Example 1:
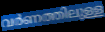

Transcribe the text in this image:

വർണത്തിലുള്ള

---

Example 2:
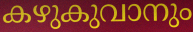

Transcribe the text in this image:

കഴുകുവാനും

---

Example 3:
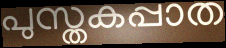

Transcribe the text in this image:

പുസ്തകപ്പാത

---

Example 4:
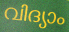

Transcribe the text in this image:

വിദ്യാം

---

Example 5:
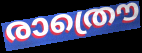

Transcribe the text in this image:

രാത്രൌ